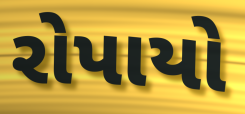
રોપાયો